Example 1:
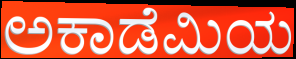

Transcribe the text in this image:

ಅಕಾಡೆಮಿಯ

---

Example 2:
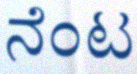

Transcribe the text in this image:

ನೆಂಟ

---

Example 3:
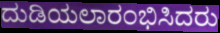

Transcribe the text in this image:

ದುಡಿಯಲಾರಂಭಿಸಿದರು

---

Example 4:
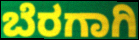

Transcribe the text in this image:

ಬೆರಗಾಗಿ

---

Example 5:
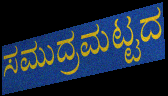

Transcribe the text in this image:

ಸಮುದ್ರಮಟ್ಟದ